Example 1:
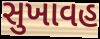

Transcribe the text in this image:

સુખાવહ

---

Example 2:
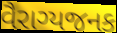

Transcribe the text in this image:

વૈરાગ્યજનક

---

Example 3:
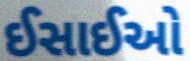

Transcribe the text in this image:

ઈસાઈઓ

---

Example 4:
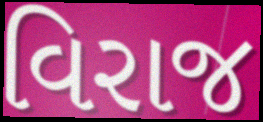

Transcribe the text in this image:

વિરાજ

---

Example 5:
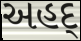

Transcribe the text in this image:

અહદ્